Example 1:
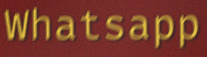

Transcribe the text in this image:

Whatsapp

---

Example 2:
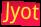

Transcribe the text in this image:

Jyot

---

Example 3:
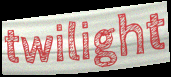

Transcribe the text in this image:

twilight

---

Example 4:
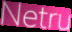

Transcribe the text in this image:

Netru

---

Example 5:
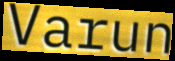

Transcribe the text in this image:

Varun